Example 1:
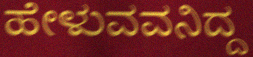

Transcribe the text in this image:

ಹೇಳುವವನಿದ್ದ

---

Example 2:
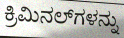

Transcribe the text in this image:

ಕ್ರಿಮಿನಲ್‍ಗಳನ್ನು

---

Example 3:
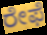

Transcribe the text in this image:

ರೇಫೆ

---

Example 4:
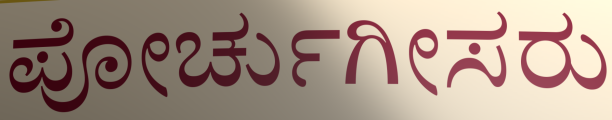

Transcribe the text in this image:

ಪೋರ್ಚುಗೀಸರು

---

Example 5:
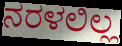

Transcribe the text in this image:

ನರಳಲಿಲ್ಲ